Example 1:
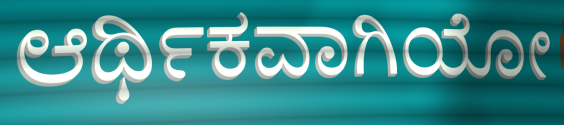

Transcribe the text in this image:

ಆರ್ಥಿಕವಾಗಿಯೋ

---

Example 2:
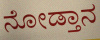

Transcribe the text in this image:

ನೋಡ್ತಾನ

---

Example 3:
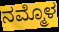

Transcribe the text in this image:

ನಮ್ಮೊಳ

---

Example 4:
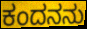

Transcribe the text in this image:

ಕಂದನನು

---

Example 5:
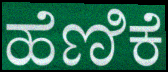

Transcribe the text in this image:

ಹೆಣಿಕೆ